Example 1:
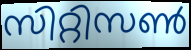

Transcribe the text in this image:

സിറ്റിസൺ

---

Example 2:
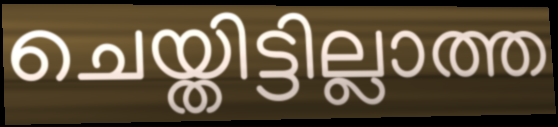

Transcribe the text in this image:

ചെയ്തിട്ടില്ലാത്ത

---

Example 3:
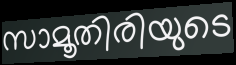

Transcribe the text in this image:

സാമൂതിരിയുടെ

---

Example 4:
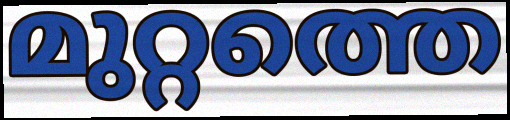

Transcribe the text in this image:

മുറ്റത്തെ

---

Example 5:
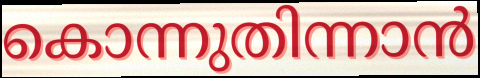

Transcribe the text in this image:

കൊന്നുതിന്നാൻ